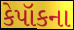
કેપૉકના